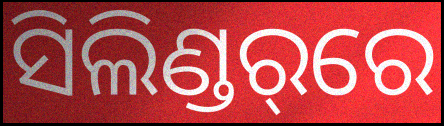
ସିଲିଣ୍ଡର୍‌ରେ